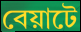
বেয়াটে